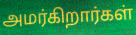
அமர்கிறார்கள்